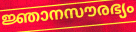
ജ്ഞാനസൗരഭ്യം